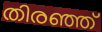
തിരഞ്ഞ്